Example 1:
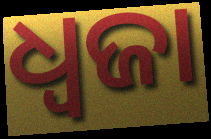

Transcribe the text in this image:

ଧ୍ୱଜା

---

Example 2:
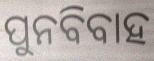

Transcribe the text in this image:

ପୁନବିବାହ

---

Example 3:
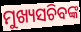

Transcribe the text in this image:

ମୁଖ୍ୟସଚିବଙ୍କ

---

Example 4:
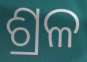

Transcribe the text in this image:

ଶ୍ରଳ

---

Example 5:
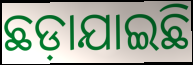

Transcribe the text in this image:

ଛଡ଼ାଯାଇଛି